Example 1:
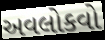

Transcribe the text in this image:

અવલોકવો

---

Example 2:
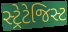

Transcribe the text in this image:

સ્ટ્રેટેજિસ્ટ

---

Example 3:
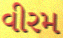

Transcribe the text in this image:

વીરમ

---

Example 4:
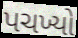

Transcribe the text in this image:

પચખ્યો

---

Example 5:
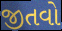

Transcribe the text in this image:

જીતવો